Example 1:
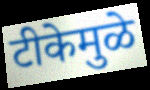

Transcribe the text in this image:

टीकेमुळे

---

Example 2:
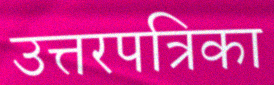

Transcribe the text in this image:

उत्तरपत्रिका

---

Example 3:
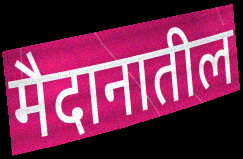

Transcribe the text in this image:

मैदानातील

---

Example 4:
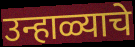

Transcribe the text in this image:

उन्हाळ्याचे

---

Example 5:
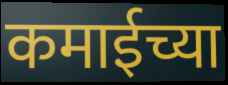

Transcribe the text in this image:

कमाईच्या